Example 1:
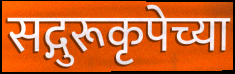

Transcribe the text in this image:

सद्गुरूकृपेच्या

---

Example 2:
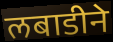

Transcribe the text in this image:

लबाडीने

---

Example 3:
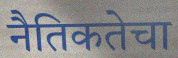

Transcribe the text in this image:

नैतिकतेचा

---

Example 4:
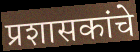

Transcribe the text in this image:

प्रशासकांचे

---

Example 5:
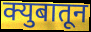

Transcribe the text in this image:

क्युबातून